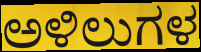
ಅಳಿಲುಗಳ